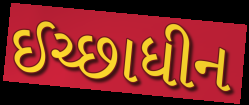
ઈચ્છાધીન